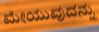
ಮೇಯುವುದನ್ನು